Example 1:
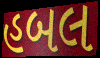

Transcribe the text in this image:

હબલ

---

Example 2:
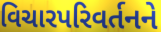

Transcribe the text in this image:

વિચારપરિવર્તનને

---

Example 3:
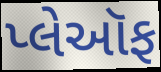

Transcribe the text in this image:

પ્લેઑફ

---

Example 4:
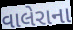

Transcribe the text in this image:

વાલેરાના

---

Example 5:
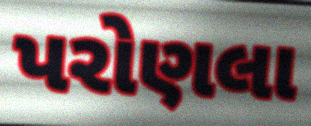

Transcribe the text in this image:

પરોણલા